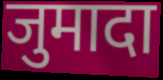
जुमादा